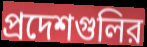
প্রদেশগুলির